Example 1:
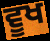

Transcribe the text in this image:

ਵੂਖ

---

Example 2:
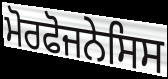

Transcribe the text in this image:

ਮੋਰਫੋਜਨੇਸਿਸ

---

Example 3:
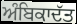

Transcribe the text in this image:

ਅੰਬਿਕਾਦੱਤ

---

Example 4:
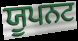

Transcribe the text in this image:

ਯੂਪਨਟ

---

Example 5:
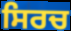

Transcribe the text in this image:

ਸਿਰਚ